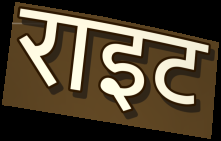
राइट